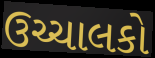
ઉચ્ચાલકો